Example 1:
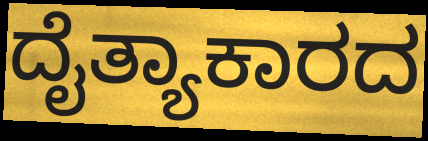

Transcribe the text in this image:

ದೈತ್ಯಾಕಾರದ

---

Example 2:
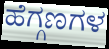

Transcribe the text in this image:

ಹೆಗ್ಗಣಗಳ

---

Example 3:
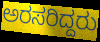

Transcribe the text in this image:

ಅರಸರಿದ್ದರು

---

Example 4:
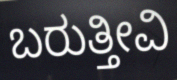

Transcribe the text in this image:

ಬರುತ್ತೀವಿ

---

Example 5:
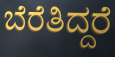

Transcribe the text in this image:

ಬೆರೆತಿದ್ದರೆ